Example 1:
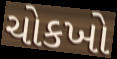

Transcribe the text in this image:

ચોકખો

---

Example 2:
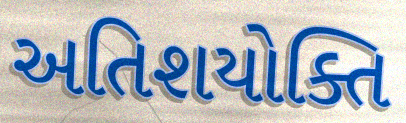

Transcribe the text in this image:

અતિશયોક્તિ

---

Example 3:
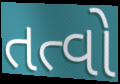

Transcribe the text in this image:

તત્વો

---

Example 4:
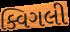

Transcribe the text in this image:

ક્વિગલી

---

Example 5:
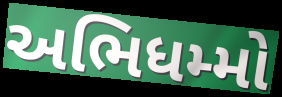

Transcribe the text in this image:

અભિધમ્મો